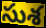
సుశ